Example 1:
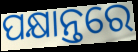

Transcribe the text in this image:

ପକ୍ଷାନ୍ତରେ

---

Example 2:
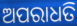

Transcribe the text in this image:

ଅପରାଧତି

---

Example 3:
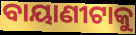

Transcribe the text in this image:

ବାୟାଣୀଟାକୁ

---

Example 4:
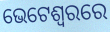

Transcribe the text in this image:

ଭେଟେଶ୍ୱରରେ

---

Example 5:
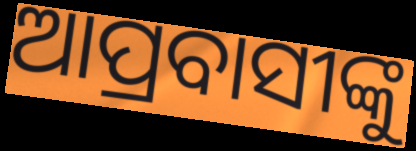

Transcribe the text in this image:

ଆପ୍ରବାସୀଙ୍କୁ